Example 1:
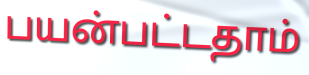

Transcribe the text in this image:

பயன்பட்டதாம்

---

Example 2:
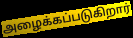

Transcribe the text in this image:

அழைக்கப்படுகிறார்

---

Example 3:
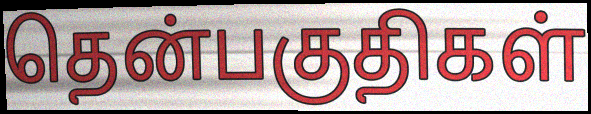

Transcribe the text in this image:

தென்பகுதிகள்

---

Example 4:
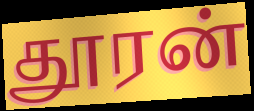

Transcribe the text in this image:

தூரன்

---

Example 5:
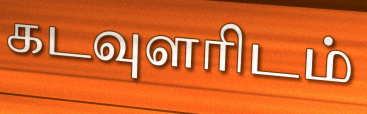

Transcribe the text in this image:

கடவுளரிடம்